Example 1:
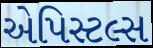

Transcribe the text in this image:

એપિસ્ટલ્સ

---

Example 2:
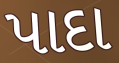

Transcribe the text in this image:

પાદા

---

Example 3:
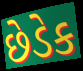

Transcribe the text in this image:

છેડેક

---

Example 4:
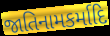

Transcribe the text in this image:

જાતિનામકર્માદિ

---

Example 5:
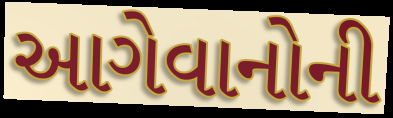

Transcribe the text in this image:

આગેવાનોની